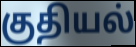
குதியல்